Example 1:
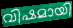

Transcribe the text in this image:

വിഷമായി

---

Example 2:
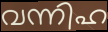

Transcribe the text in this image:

വന്നിഹ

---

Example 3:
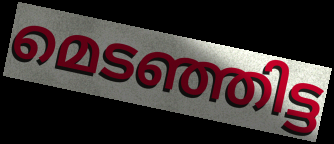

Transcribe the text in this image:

മെടഞ്ഞിട്ട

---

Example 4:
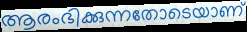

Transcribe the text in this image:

ആരംഭിക്കുന്നതോടെയാണ്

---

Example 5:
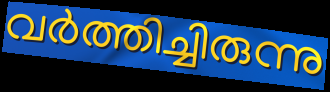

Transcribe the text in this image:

വർത്തിച്ചിരുന്നു